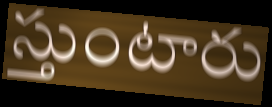
స్తుంటారు